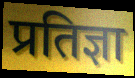
प्रतिज्ञा